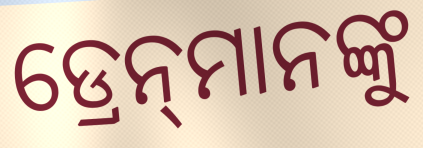
ଡ୍ରେନ୍‌ମାନଙ୍କୁ